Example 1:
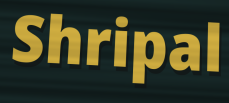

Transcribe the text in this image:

Shripal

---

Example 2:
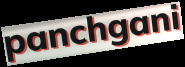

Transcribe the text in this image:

panchgani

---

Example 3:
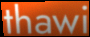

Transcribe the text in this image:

thawi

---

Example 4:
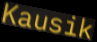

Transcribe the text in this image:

Kausik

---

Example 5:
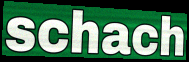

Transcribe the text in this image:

schach